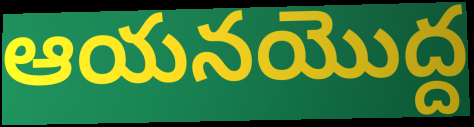
ఆయనయొద్ద